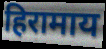
हिरामाय